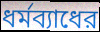
ধর্মব্যাধের